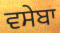
ਵਸੇਬਾ